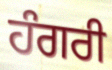
ਹੰਗਰੀ